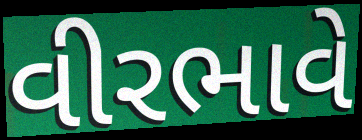
વીરભાવે